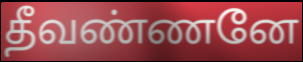
தீவண்ணனே